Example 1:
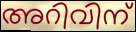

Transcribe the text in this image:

അറിവിന്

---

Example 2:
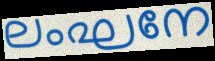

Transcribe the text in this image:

ലംഘനേ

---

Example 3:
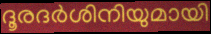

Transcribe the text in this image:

ദൂരദർശിനിയുമായി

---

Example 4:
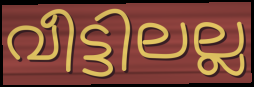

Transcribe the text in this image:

വീട്ടിലല്ല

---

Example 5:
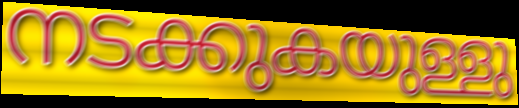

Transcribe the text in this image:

നടക്കുകയുള്ളു